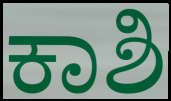
ಕಾಶಿ